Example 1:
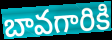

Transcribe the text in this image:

బావగారికి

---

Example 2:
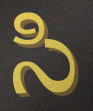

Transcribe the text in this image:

సి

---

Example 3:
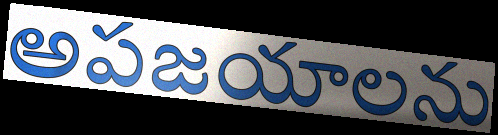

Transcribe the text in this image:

అపజయాలను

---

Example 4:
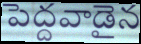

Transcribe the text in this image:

పెద్దవాడైన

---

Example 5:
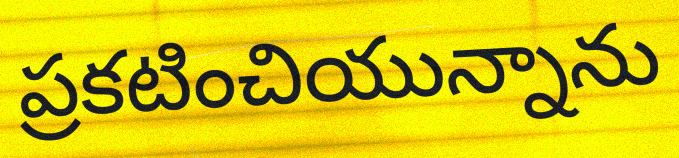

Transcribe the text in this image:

ప్రకటించియున్నాను